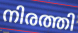
നിരത്തി